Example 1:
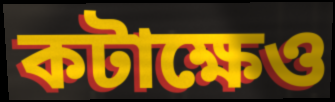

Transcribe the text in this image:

কটাক্ষেও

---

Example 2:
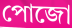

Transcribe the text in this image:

পোজো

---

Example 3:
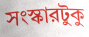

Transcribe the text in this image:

সংস্কারটুকু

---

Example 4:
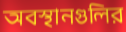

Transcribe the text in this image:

অবস্থানগুলির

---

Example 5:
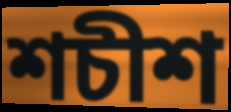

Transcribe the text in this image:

শচীশ